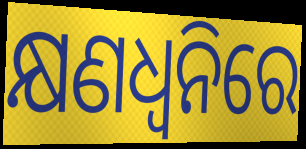
କ୍ଷଣଧ୍ୱନିରେ